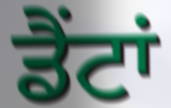
ਡੈਂਟਾਂ